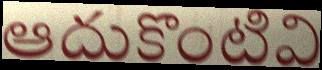
ఆదుకొంటివి